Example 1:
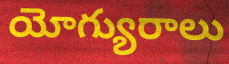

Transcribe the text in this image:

యోగ్యురాలు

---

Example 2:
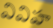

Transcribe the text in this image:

వివిహ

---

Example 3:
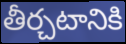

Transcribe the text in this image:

తీర్చటానికి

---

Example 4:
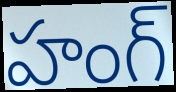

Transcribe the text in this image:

హంగ్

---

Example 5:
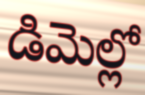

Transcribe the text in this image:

డిమెల్లో